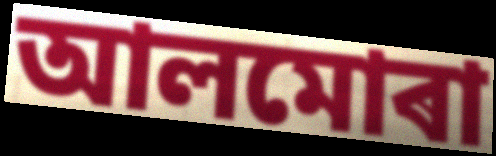
আলমোৰা